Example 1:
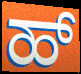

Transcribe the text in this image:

ಹ್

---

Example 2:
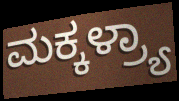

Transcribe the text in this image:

ಮಕ್ಕಳ್ರ್ಯಾ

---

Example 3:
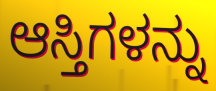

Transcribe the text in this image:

ಆಸ್ತಿಗಳನ್ನು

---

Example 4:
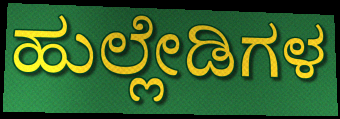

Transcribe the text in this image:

ಹುಲ್ಲೇಡಿಗಳ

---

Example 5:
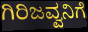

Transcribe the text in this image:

ಗಿರಿಜವ್ವನಿಗೆ